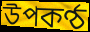
উপকণ্ঠ